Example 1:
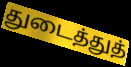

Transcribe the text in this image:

துடைத்துத்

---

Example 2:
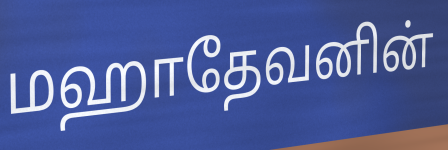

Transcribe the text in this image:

மஹாதேவனின்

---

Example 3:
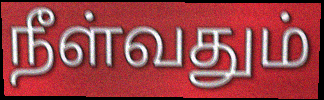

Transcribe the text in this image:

நீள்வதும்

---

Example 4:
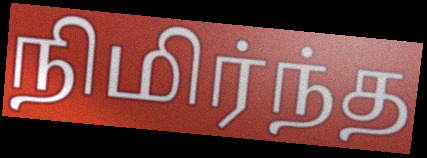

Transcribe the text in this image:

நிமிர்ந்த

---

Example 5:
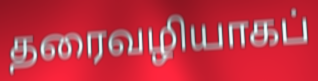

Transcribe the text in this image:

தரைவழியாகப்